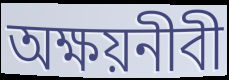
অক্ষয়নীবী